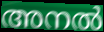
അനൽ